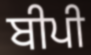
ਬੀਪੀ